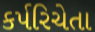
કર્પરિચેતા